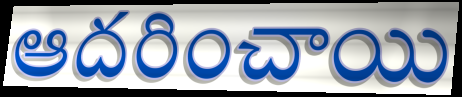
ఆదరించాయి